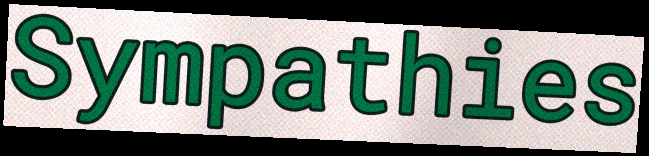
Sympathies